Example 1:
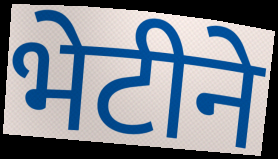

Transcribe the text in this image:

भेटीने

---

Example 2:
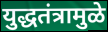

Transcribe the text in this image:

युद्धतंत्रामुळे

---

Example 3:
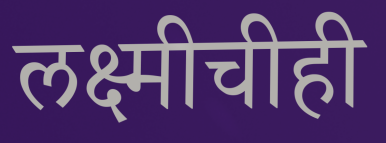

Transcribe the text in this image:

लक्ष्मीचीही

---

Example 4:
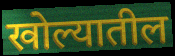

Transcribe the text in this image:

खोल्यातील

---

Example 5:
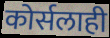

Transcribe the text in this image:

कोर्सलाही